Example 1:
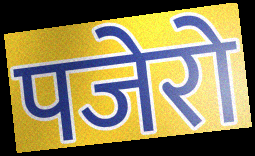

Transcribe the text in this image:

पजेरो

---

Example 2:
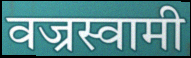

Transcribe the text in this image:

वज्रस्वामी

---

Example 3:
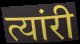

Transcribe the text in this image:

त्यांरी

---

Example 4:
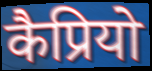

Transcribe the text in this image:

कैप्रियो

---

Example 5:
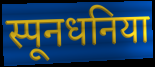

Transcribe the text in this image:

स्पूनधनिया